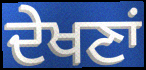
ਦੇਖਣਾਂ